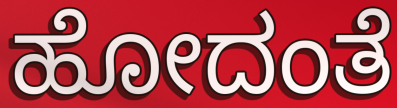
ಹೋದಂತೆ